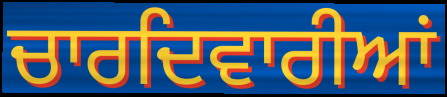
ਚਾਰਦਿਵਾਰੀਆਂ